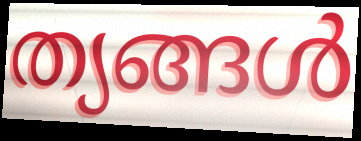
ത്യങ്ങൾ